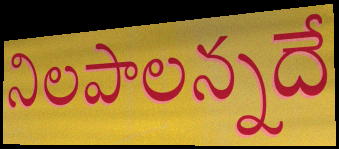
నిలపాలన్నదే